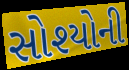
સોશ્યોની